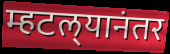
म्हटल्यानंतर